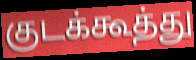
குடக்கூத்து